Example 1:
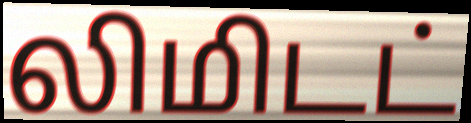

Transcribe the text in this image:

லிமிடட்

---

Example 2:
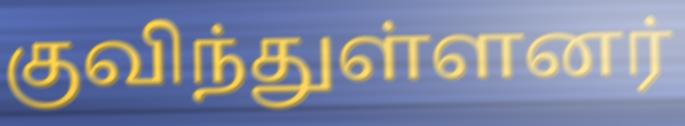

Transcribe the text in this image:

குவிந்துள்ளனர்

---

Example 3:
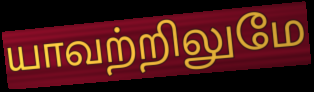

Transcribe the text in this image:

யாவற்றிலுமே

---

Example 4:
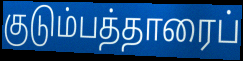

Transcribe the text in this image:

குடும்பத்தாரைப்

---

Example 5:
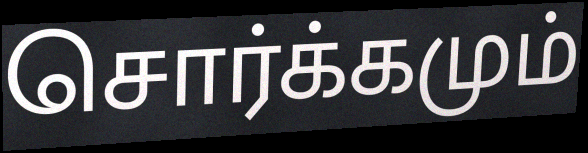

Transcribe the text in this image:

சொர்க்கமும்